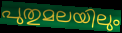
പുതുമലയിലും